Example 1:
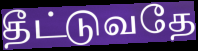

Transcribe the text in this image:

தீட்டுவதே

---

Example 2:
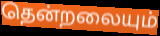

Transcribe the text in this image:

தென்றலையும்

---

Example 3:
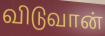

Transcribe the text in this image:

விடுவான்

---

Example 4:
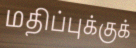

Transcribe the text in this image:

மதிப்புக்குக்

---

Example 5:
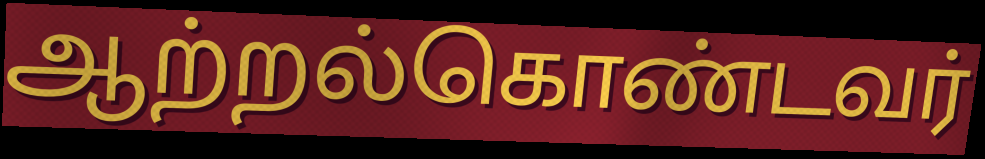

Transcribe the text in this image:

ஆற்றல்கொண்டவர்